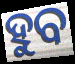
ହୁବ